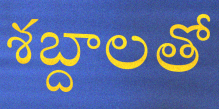
శబ్దాలతో